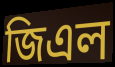
জিএল